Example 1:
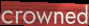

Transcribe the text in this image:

crowned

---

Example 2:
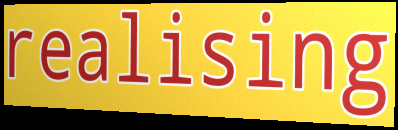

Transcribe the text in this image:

realising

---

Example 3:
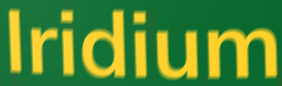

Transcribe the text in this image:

Iridium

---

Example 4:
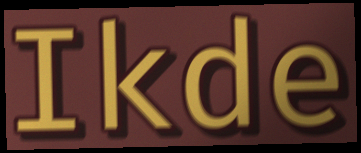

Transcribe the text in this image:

Ikde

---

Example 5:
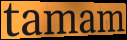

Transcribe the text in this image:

tamam